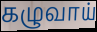
கழுவாய்